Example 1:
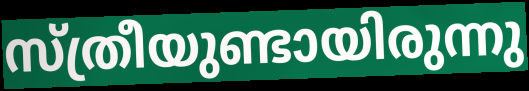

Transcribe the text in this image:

സ്ത്രീയുണ്ടായിരുന്നു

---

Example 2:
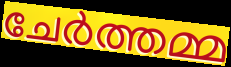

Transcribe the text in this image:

ചേർത്തമ്മ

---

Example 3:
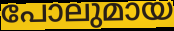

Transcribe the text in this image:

പോലുമായ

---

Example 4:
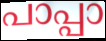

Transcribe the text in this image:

പാപ്പാ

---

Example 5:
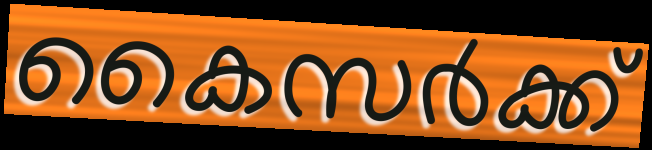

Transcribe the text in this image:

കൈസർക്ക്